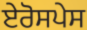
ਏਰੋਸਪੇਸ